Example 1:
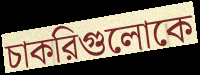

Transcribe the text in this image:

চাকরিগুলোকে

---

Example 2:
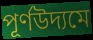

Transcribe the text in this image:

পূর্ণউদ্যমে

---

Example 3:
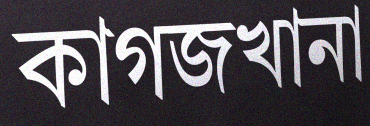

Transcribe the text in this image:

কাগজখানা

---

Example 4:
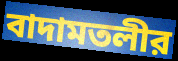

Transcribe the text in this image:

বাদামতলীর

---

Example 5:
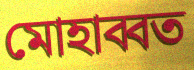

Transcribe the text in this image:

মোহাব্বত